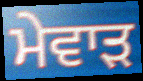
ਮੇਵਾੜ